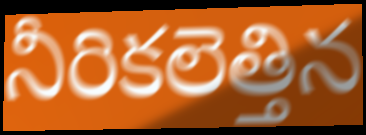
నీరికలెత్తిన